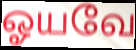
ஓயவே